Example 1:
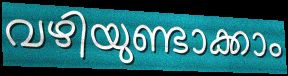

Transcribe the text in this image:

വഴിയുണ്ടാക്കാം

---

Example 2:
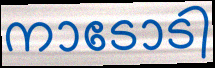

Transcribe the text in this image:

നാടോടി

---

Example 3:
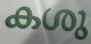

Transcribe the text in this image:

കശു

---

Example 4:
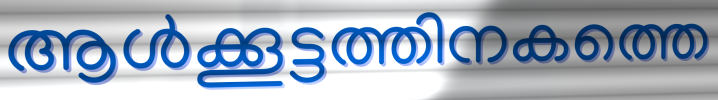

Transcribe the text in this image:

ആൾക്കൂട്ടത്തിനകത്തെ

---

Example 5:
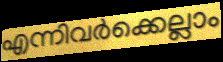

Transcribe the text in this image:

എന്നിവർക്കെല്ലാം